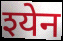
श्येन